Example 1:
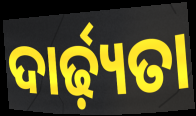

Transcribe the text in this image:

ଦାର୍ଢ଼୍ୟତା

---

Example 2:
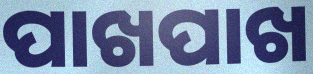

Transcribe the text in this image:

ପାଖପାଖ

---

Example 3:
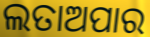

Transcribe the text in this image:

ଲତାଅପାର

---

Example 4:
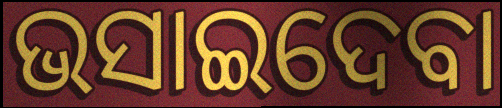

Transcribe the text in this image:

ଭସାଇଦେବା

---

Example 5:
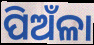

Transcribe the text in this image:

ପିଅଁଳା